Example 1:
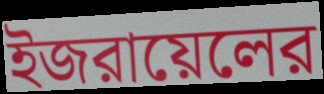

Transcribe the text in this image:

ইজরায়েলের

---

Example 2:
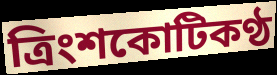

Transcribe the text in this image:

ত্রিংশকোটিকণ্ঠ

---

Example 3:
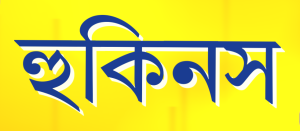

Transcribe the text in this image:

হুকিনস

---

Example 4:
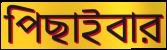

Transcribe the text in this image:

পিছাইবার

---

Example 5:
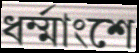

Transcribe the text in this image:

ধর্ম্মাংশে